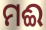
ମଈ